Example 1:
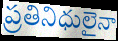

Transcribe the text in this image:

ప్రతినిధులైనా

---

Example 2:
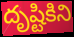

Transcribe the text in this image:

దృష్టికిని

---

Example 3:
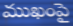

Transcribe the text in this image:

ముఖంపై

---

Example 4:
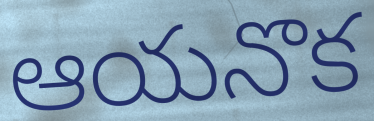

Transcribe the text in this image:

ఆయనొక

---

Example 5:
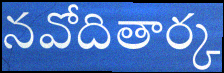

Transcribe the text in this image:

నవోదితార్క